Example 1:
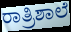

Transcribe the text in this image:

ರಾತ್ರಿಶಾಲೆ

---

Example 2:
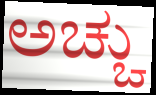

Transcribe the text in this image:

ಅಚ್ಚು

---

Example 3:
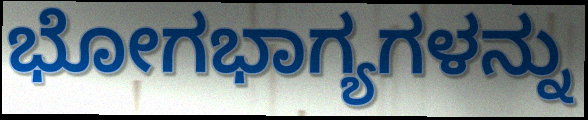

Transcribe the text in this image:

ಭೋಗಭಾಗ್ಯಗಳನ್ನು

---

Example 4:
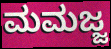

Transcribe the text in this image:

ಮಮಜ್ಜ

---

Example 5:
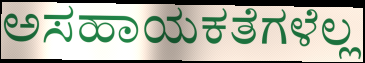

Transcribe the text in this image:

ಅಸಹಾಯಕತೆಗಳೆಲ್ಲ